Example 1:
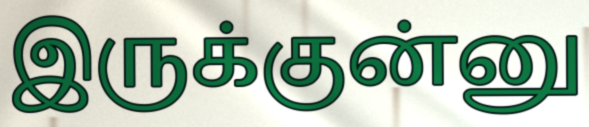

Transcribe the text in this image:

இருக்குன்னு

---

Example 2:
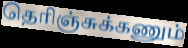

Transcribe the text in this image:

தெரிஞ்சுக்கணும்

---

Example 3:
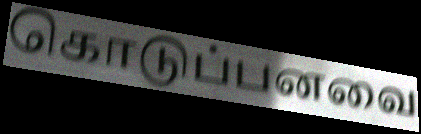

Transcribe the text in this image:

கொடுப்பனவை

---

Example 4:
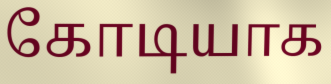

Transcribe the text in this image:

கோடியாக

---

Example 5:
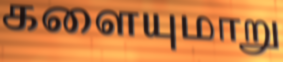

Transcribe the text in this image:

களையுமாறு